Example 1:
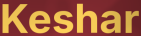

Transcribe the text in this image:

Keshar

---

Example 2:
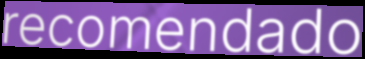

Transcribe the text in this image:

recomendado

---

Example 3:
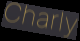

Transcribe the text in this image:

Charly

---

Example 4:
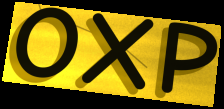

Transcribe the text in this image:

OXP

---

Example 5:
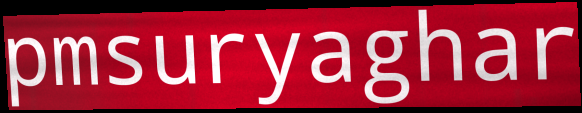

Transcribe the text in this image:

pmsuryaghar